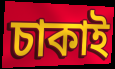
চাকাই